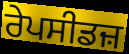
ਰੇਪਸੀਡਜ਼